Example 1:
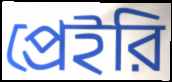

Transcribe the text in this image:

প্রেইরি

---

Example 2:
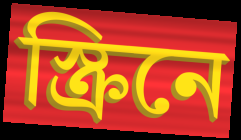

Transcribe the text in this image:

স্ক্রিনে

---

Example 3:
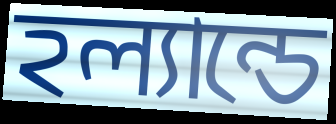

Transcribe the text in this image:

হল্যান্ডে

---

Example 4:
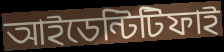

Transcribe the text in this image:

আইডেন্টিটিফাই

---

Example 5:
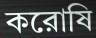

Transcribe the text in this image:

করোষি